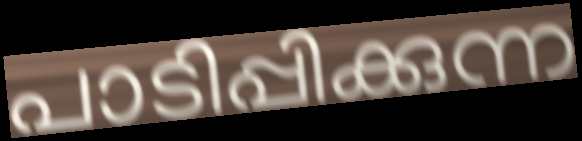
പാടിപ്പിക്കുന്ന